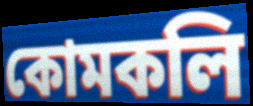
কোমকলি